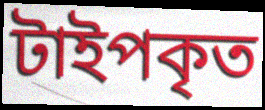
টাইপকৃত